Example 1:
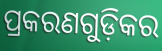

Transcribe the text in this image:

ପ୍ରକରଣଗୁଡ଼ିକର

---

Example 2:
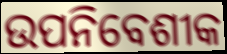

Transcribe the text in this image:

ଉପନିବେଶୀକ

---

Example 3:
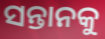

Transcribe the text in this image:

ସନ୍ତାନକୁ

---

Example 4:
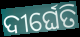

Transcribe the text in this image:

ଦୀର୍ଘେତି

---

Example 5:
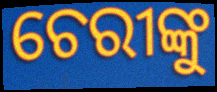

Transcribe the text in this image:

ଚେରୀଙ୍କୁ